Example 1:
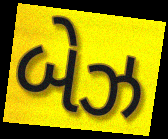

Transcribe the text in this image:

બેઝ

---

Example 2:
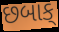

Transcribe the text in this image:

છબાક્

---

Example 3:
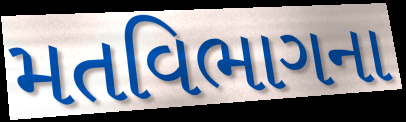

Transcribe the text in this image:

મતવિભાગના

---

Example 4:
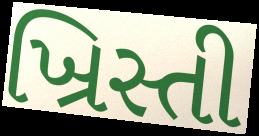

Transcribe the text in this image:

ખ્રિસ્તી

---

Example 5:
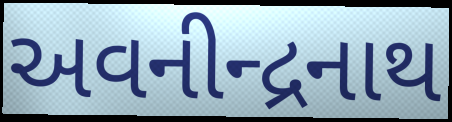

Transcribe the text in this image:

અવનીન્દ્રનાથ